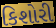
કિશોરી